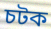
চটক